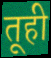
तूही